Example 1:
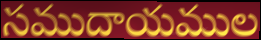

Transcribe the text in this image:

సముదాయముల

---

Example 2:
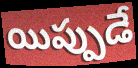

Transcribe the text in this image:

యిప్పుడే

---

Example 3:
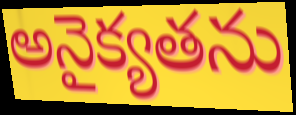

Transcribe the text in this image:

అనైక్యతను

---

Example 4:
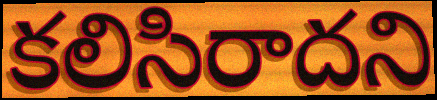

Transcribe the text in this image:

కలిసిరాదని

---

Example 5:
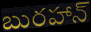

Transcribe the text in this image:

బురహాన్